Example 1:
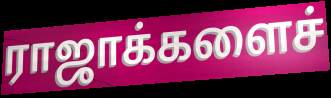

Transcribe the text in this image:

ராஜாக்களைச்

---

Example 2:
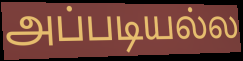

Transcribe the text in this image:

அப்படியல்ல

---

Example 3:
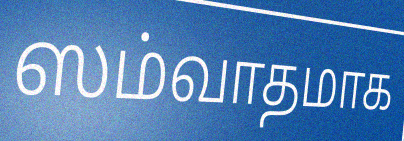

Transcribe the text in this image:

ஸம்வாதமாக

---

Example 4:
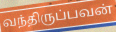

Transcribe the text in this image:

வந்திருப்பவன்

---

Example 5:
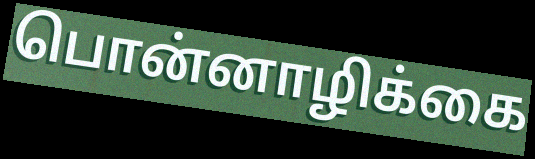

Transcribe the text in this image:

பொன்னாழிக்கை